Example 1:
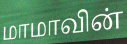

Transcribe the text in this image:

மாமாவின்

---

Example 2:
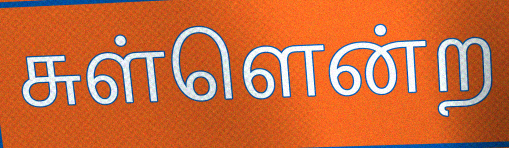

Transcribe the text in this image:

சுள்ளென்ற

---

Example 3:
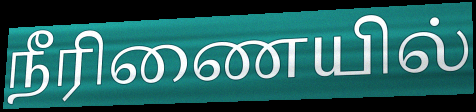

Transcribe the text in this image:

நீரிணையில்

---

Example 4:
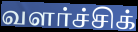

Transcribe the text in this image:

வளர்ச்சிக்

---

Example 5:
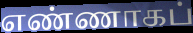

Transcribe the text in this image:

எண்ணாகப்